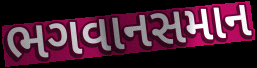
ભગવાનસમાન